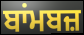
ਬਾਂਮਬਜ਼